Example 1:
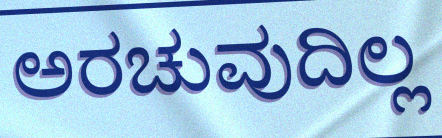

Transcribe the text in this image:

ಅರಚುವುದಿಲ್ಲ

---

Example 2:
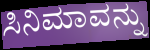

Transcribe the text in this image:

ಸಿನಿಮಾವನ್ನು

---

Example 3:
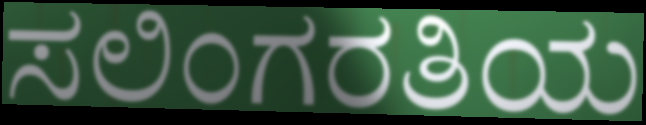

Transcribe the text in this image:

ಸಲಿಂಗರತಿಯ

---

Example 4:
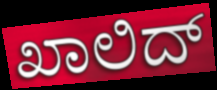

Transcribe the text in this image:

ಖಾಲಿದ್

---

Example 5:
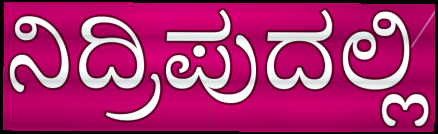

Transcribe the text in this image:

ನಿದ್ರಿಪುದಲ್ಲಿ